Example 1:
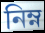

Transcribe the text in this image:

নিম্ন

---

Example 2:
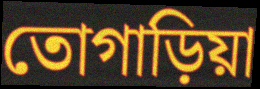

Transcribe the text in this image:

তোগাড়িয়া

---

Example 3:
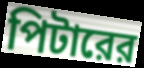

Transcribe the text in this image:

পিটারের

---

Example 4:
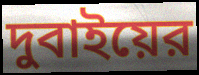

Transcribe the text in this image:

দুবাইয়ের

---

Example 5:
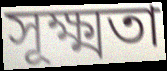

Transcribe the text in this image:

সূক্ষ্মতা